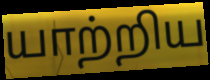
யாற்றிய